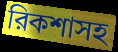
রিকশাসহ